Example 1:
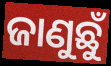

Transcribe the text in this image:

ଜାଣୁଛୁଁ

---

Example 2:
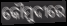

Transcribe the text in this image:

କୌମୁଦୀରେ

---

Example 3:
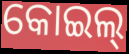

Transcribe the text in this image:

କୋଇଲ୍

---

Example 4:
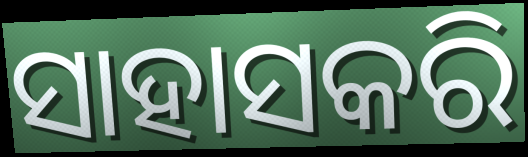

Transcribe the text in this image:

ସାହାସକରି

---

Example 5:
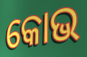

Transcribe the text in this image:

କୋଭ